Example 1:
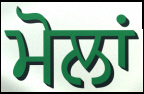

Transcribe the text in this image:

ਮੋਲਾਂ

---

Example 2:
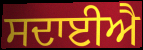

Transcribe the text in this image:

ਸਦਾਈਐ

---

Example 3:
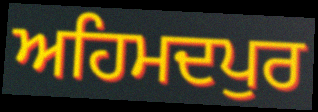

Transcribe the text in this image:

ਅਹਿਮਦਪੁਰ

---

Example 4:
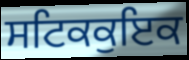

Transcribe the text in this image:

ਸਟਿਕਕੁਇਕ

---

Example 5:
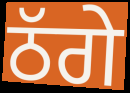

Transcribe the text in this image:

ਠੱਗੇ